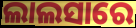
ଲାଲସାରେ